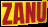
ZANU